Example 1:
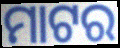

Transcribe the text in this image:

ମାଟର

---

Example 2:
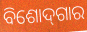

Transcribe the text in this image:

ବିଶୋଦ୍‌ଗାର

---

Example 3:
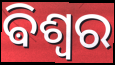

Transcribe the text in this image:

ଵିଶ୍ୱର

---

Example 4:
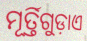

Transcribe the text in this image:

ମୂର୍ତ୍ତିଗୁଡ଼ାଏ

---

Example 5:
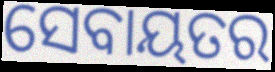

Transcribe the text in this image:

ସେବାୟତର